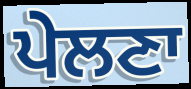
ਪੇਲਣਾ